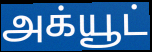
அக்யூட்